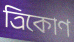
ত্রিকোণ